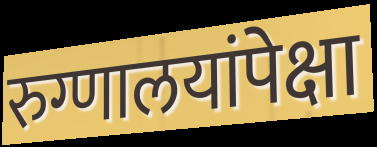
रुग्णालयांपेक्षा